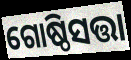
ଗୋଷ୍ଠିସତ୍ତା